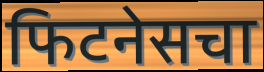
फिटनेसचा